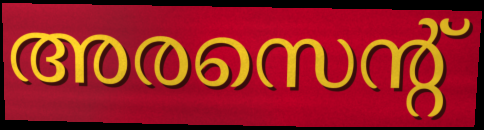
അരസെന്റ്